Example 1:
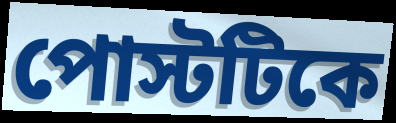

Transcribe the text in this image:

পোস্টটিকে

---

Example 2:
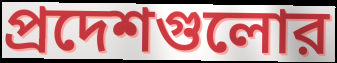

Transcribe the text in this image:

প্রদেশগুলোর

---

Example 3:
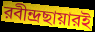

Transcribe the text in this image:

রবীন্দ্রছায়ারই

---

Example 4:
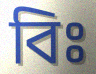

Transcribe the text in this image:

বিঃ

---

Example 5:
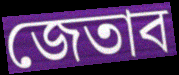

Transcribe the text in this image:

জেতাব